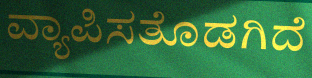
ವ್ಯಾಪಿಸತೊಡಗಿದೆ